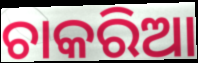
ଚାକରିଆ